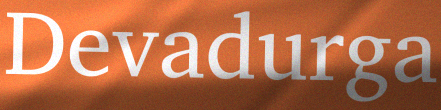
Devadurga